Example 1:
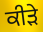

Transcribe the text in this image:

ਕੀੜੇ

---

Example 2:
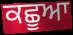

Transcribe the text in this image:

ਕਛੂਆ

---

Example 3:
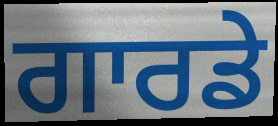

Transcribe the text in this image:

ਗਾਰਡੇ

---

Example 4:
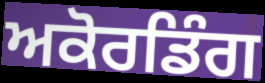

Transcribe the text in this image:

ਅਕੋਰਡਿੰਗ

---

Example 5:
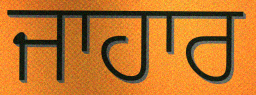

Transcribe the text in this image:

ਜਾਹਾਰ